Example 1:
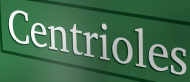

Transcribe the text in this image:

Centrioles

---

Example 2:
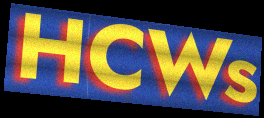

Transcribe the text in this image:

HCWs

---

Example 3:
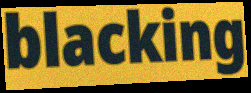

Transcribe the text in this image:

blacking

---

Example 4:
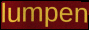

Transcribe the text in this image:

lumpen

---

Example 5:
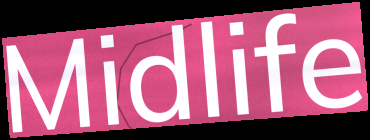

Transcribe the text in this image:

Midlife